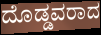
ದೊಡ್ಡವರಾದ